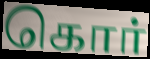
கொர்